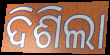
ଦିଶିଲା